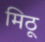
मिठू